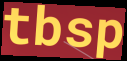
tbsp